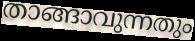
താങ്ങാവുന്നതും